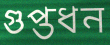
গুপ্তধন